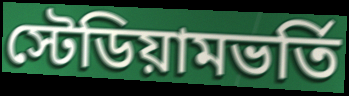
স্টেডিয়ামভর্তি